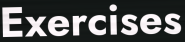
Exercises